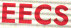
EECS